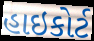
હાઇકોર્ટ